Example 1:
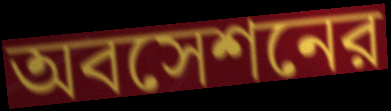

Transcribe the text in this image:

অবসেশনের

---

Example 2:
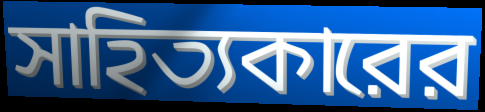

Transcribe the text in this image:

সাহিত্যকারের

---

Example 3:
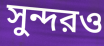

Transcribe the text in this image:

সুন্দরও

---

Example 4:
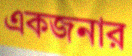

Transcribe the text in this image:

একজনার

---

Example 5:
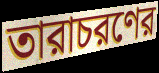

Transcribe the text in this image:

তারাচরণের